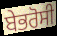
ਬੇਭਰੋਸੀ